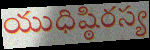
యుధిష్ఠిరస్య